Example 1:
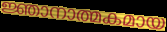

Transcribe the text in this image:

ജ്ഞാനാത്മകമായ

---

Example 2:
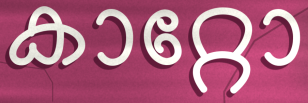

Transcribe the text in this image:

കാറ്റോ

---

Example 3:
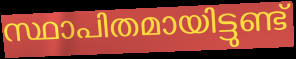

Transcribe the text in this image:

സ്ഥാപിതമായിട്ടുണ്ട്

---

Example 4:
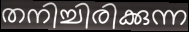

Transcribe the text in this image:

തനിച്ചിരിക്കുന്ന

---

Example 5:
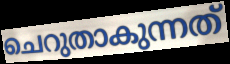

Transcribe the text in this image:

ചെറുതാകുന്നത്